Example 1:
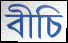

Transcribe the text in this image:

বীচি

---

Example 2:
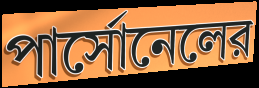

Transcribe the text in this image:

পার্সোনেলের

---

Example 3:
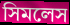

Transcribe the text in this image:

সিমলেস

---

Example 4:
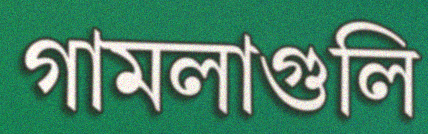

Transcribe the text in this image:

গামলাগুলি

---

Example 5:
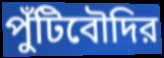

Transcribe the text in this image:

পুঁটিবৌদির